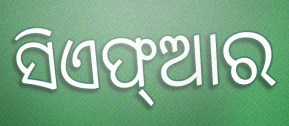
ସିଏଫ୍ଆର